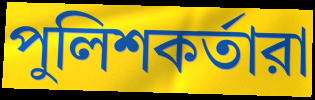
পুলিশকর্তারা